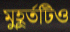
মুহূর্তটিও